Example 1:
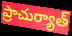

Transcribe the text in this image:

ప్రాచుర్యాత్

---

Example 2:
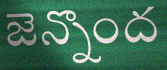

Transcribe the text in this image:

జెన్నొంద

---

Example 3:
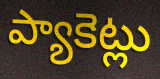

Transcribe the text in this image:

ప్యాకెట్లు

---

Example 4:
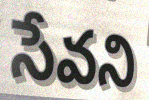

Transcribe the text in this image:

సేవని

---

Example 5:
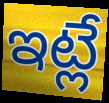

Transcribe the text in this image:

ఇట్లే